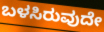
ಬಳಸಿರುವುದೇ